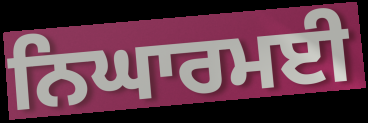
ਨਿਘਾਰਮਈ